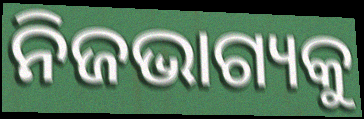
ନିଜଭାଗ୍ୟକୁ